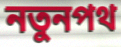
নতুনপথ